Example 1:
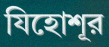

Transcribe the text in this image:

যিহোশূর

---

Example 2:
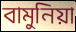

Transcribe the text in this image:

বামুনিয়া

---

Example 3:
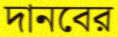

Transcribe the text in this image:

দানবের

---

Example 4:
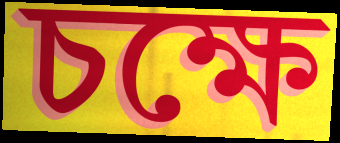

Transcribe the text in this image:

চক্ষে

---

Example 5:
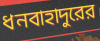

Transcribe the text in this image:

ধনবাহাদুরের